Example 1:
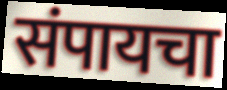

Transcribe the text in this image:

संपायचा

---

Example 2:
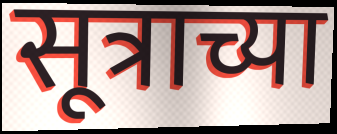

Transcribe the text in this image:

सूत्राच्या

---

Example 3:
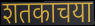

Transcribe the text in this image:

शतकाचया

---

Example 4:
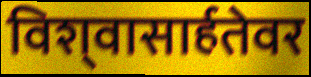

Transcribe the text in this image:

विश्वासार्हतेवर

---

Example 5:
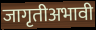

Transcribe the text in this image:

जागृतीअभावी